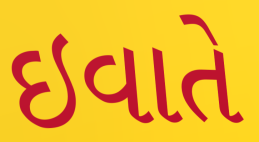
ઇવાતે